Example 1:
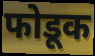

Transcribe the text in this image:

फोडूक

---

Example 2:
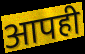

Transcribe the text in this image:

आपही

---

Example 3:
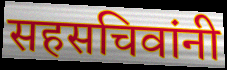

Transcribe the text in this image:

सहसचिवांनी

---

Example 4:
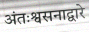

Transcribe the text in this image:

अंतःश्वसनाद्वारे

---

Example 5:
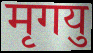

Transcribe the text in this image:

मृगयु